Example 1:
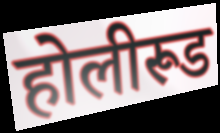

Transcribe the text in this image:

होलीरूड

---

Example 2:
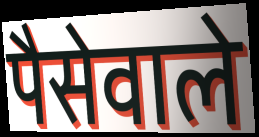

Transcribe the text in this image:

पैसेवाले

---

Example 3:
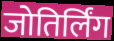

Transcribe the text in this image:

जोतिर्लिंग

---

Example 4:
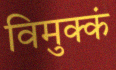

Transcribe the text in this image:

विमुक्कं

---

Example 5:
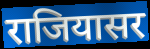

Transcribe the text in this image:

राजियासर